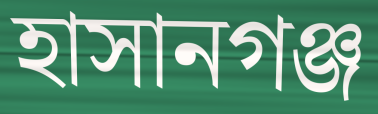
হাসানগঞ্জ